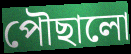
পৌছালো